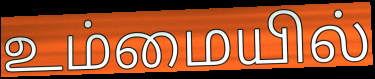
உம்மையில்